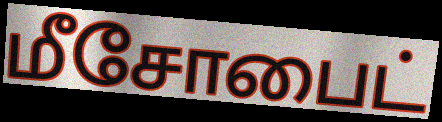
மீசோபைட்